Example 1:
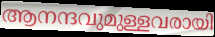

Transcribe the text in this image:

ആനന്ദവുമുള്ളവരായി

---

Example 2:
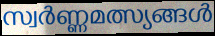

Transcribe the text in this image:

സ്വർണ്ണമത്സ്യങ്ങൾ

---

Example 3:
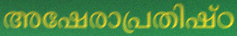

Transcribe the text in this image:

അഷേരാപ്രതിഷ്ഠ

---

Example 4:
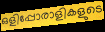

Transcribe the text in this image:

ഒളിപ്പോരാളികളുടെ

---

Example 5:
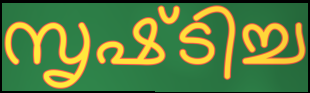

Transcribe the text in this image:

സൃഷ്‌ടിച്ച